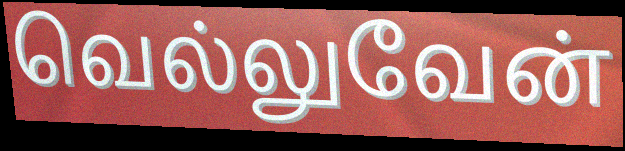
வெல்லுவேன்